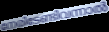
നേരിടേണ്ടിവന്നാൽ